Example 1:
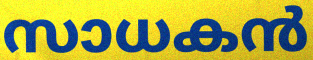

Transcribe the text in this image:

സാധകൻ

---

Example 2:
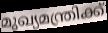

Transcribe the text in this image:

മുഖ്യമന്ത്രിക്ക്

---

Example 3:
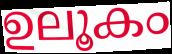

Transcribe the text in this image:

ഉലൂകം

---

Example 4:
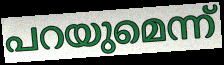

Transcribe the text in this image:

പറയുമെന്ന്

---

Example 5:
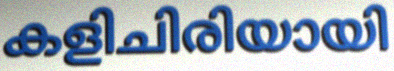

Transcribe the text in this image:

കളിചിരിയായി